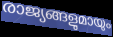
രാജ്യങ്ങളുമായും